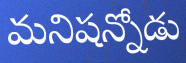
మనిషన్నోడు